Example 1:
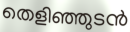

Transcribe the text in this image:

തെളിഞ്ഞുടൻ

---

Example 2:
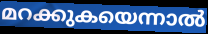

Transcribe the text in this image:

മറക്കുകയെന്നാൽ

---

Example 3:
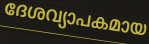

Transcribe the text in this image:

ദേശവ്യാപകമായ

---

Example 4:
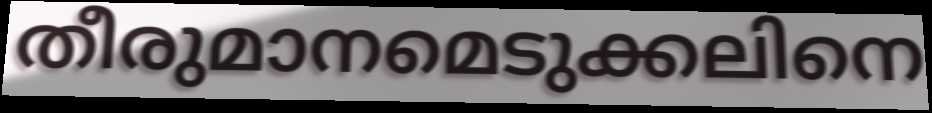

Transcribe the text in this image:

തീരുമാനമെടുക്കലിനെ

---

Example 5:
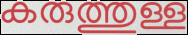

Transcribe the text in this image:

കരുത്തുള്ള